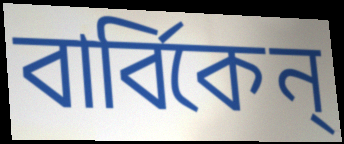
বার্বিকেন্